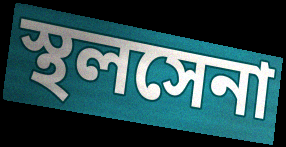
স্থলসেনা